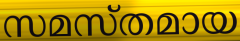
സമസ്തമായ